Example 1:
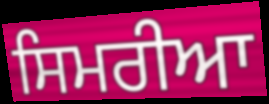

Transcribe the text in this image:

ਸਿਮਰੀਆ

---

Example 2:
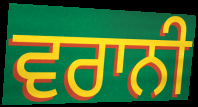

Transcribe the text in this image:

ਵਰਾਨੀ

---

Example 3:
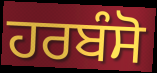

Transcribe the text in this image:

ਹਰਬੰਸੋ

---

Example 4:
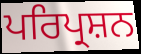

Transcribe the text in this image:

ਪਰਿਪ੍ਰਸ਼ਨ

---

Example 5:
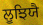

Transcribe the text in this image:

ਲੂਝਿਯੈ